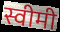
स्वीमी